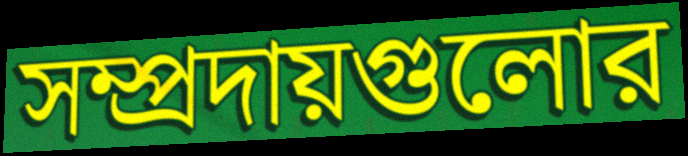
সম্প্রদায়গুলোর